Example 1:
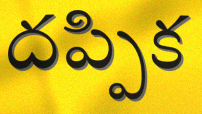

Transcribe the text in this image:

దప్పిక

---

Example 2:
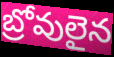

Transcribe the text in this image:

బ్రోవులైన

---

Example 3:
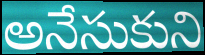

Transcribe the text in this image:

అనేసుకుని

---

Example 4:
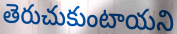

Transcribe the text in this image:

తెరుచుకుంటాయని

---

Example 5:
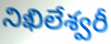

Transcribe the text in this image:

నిఖిలేశ్వరీ